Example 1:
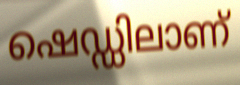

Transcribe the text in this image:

ഷെഡ്ഡിലാണ്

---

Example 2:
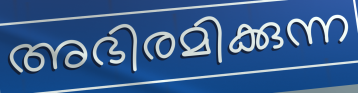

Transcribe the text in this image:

അഭിരമിക്കുന്ന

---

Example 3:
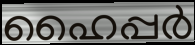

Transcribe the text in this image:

ഹൈപ്പർ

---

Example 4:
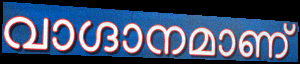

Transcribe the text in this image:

വാഗ്ദാനമാണ്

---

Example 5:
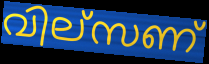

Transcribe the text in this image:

വില്സണ്